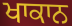
ਖਾਕਾਨ